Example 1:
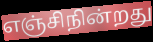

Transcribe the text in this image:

எஞ்சிநின்றது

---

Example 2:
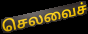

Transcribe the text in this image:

செலவைச்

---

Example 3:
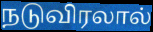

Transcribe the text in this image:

நடுவிரலால்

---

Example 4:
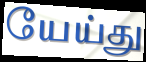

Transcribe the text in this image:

யேய்து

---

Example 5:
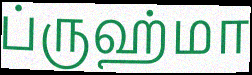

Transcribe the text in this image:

ப்ருஹ்மா